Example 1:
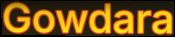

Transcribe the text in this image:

Gowdara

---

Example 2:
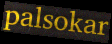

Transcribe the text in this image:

palsokar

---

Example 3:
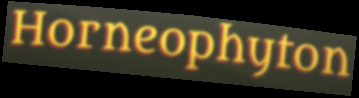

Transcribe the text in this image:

Horneophyton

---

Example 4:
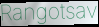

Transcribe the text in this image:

Rangotsav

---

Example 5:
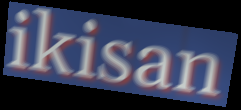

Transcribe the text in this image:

ikisan